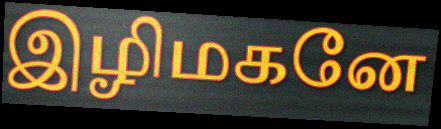
இழிமகனே